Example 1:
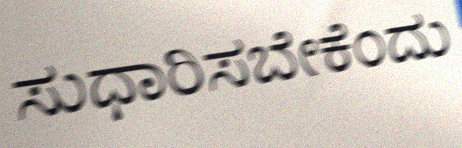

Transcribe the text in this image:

ಸುಧಾರಿಸಬೇಕೆಂದು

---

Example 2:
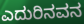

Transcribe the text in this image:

ಎದುರಿನವನ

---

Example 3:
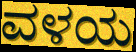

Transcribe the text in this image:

ವಳಯ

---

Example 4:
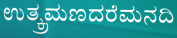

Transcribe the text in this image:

ಉತ್ಕ್ರಮಣದರೆಮನದಿ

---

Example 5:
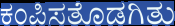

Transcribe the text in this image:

ಕಂಪಿಸತೊಡಗಿತು